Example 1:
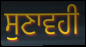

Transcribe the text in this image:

ਸੁਣਾਵਹੀ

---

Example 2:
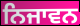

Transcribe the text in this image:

ਨਿਜਾਵਨ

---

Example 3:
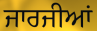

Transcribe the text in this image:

ਜਾਰਜੀਆਂ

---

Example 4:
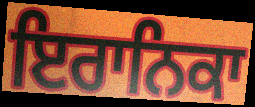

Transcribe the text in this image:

ਇਰਾਨਿਕਾ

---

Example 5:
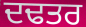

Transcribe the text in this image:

ਦਢਤਰ